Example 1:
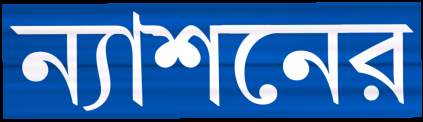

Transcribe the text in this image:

ন্যাশনের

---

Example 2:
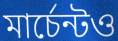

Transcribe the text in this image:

মার্চেন্টও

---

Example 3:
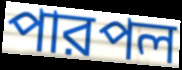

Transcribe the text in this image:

পারপল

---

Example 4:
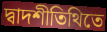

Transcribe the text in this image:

দ্বাদশীতিথিতে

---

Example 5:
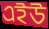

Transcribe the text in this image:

এইউ